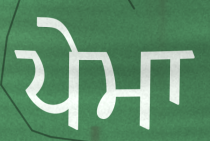
ਪੇਮਾ